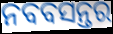
ନବବସନ୍ତର